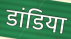
डांडिया